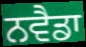
ਨਵੈਡਾ